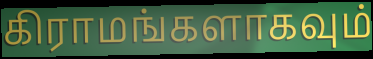
கிராமங்களாகவும்